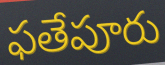
ఫతేపూరు